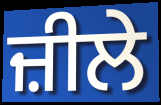
ਜ਼ੀਲੇ